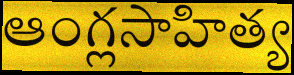
ఆంగ్లసాహిత్య